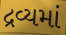
દ્રવ્યમાં